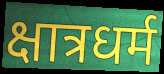
क्षात्रधर्म